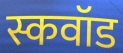
स्कवॉड